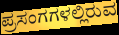
ಪ್ರಸಂಗಗಳಲ್ಲಿರುವ